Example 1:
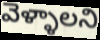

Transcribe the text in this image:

వెళ్ళాలని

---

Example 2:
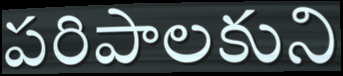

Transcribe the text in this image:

పరిపాలకుని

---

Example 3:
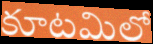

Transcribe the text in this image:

కూటమిలో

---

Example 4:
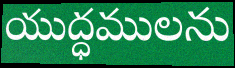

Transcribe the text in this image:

యుద్ధములను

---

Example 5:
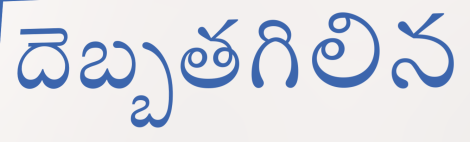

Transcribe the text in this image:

దెబ్బతగిలిన